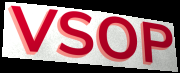
VSOP